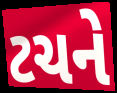
ટચને